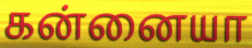
கன்னையா